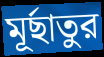
মূর্ছাতুর